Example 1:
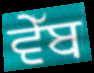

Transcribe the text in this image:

ਵੇੱਬ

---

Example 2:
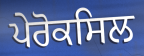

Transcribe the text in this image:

ਪੇਰੋਕਸਿਲ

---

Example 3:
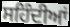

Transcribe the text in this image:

ਸਹਿੰਦੀਆਂ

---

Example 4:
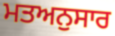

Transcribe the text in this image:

ਮਤਅਨੁਸਾਰ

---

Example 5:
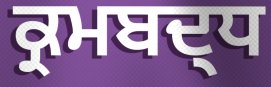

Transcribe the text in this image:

ਕ੍ਰਮਬਦ੍ਧ